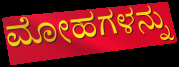
ಮೋಹಗಳನ್ನು